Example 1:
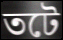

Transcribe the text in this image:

তটে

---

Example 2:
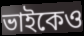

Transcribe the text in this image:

ভাইকেও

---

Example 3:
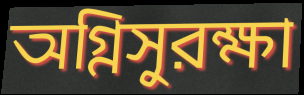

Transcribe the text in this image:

অগ্নিসুরক্ষা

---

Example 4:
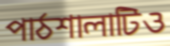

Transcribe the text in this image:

পাঠশালাটিও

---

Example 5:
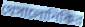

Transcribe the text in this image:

থেসালোনিকির